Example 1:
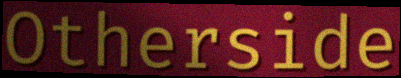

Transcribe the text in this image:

Otherside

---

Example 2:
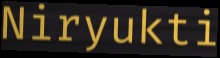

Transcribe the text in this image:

Niryukti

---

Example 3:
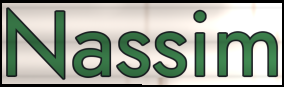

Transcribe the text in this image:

Nassim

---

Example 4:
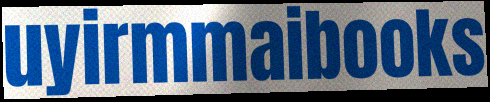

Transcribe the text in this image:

uyirmmaibooks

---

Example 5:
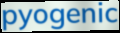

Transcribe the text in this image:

pyogenic